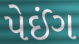
પેઈંગ